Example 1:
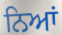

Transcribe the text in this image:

ਨਿਆਂ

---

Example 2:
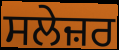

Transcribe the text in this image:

ਸਲੇਜ਼ਰ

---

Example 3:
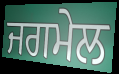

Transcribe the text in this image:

ਜਗਮੇਲ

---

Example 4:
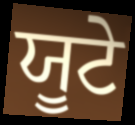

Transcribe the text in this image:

ਯੂਟੇ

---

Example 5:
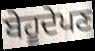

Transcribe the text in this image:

ਬੇਹੂਦੇਪਣ